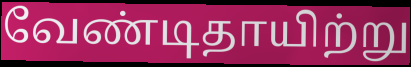
வேண்டிதாயிற்று